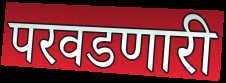
परवडणारी